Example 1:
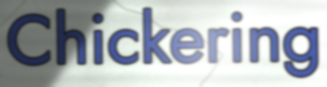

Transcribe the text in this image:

Chickering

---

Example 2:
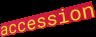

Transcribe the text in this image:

accession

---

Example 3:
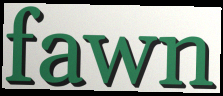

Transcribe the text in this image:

fawn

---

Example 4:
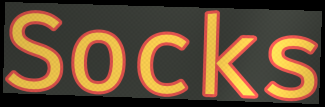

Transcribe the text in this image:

Socks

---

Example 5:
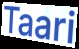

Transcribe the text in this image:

Taari